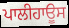
ਪਾਲੀਹਾਊਸ